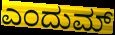
ಎಂದುಮ್